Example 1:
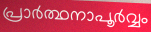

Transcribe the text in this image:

പ്രാർത്ഥനാപൂർവ്വം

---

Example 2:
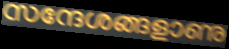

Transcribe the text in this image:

സന്ദേശങ്ങളാണു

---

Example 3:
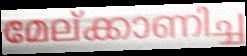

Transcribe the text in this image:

മേല്ക്കാണിച്ച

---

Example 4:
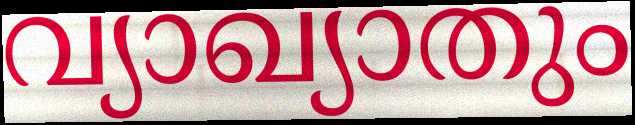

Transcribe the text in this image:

വ്യാഖ്യാതും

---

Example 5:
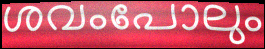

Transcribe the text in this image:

ശവംപോലും